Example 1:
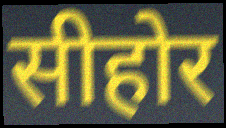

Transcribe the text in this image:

सीहोर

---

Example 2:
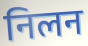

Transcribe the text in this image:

निलन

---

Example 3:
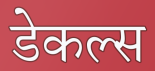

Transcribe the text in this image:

डेकल्स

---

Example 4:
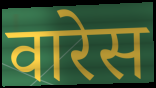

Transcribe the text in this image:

वारेस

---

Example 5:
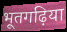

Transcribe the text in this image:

भूतगढ़िया